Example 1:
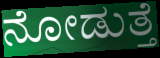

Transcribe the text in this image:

ನೋಡುತ್ತೆ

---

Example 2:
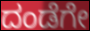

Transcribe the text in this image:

ದಂಡೆಗೇ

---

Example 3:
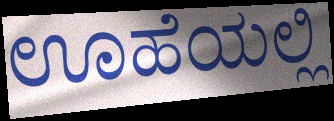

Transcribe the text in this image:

ಊಹೆಯಲ್ಲಿ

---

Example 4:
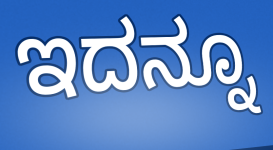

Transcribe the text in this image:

ಇದನ್ನೂ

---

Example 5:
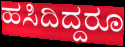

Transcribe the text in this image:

ಹಸಿದಿದ್ದರೂ